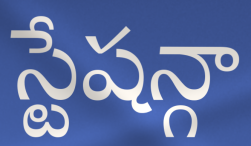
స్టేషన్గా